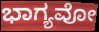
ಭಾಗ್ಯವೋ